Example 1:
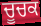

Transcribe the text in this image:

ਚੂਚਕ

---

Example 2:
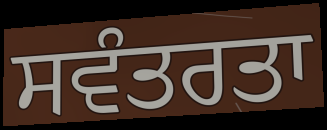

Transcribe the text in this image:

ਸਵੰਤਰਤਾ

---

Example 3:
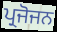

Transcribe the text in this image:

ਪ੍ਰਜੋਜਨ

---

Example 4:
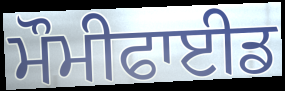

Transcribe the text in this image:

ਮੌਮੀਫਾਈਡ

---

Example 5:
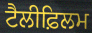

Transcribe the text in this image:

ਟੈਲੀਫ਼ਿਲਮ